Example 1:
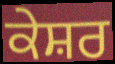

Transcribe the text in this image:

ਕੇਸ਼ਰ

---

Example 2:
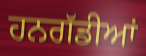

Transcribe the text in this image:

ਹਨਗੱਡੀਆਂ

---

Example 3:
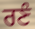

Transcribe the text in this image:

ਰਣੰ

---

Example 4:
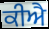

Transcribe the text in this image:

ਕੀਐ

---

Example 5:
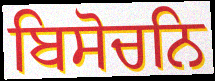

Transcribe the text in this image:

ਬਿਸੋਚਨਿ